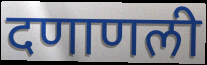
दणाणली